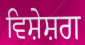
ਵਿਸ਼ੇਸ਼ਗ